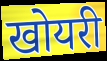
खोयरी